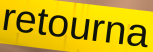
retourna